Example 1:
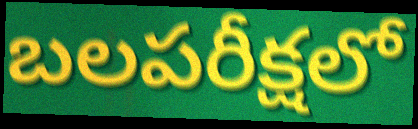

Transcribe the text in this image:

బలపరీక్షలో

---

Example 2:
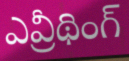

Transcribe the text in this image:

ఎవ్రీథింగ్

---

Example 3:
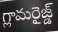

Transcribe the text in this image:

గ్లామరైజ్డ్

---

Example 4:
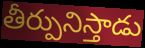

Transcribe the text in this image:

తీర్పునిస్తాడు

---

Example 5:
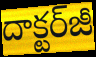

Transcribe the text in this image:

దాక్టర్‌జీ